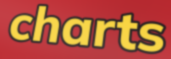
charts